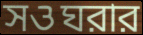
সওঘরার